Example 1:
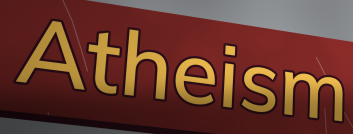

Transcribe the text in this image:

Atheism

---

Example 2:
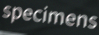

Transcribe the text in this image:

specimens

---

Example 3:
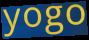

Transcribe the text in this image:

yogo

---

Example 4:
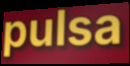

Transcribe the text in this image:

pulsa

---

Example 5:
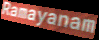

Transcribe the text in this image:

Ramayanam